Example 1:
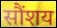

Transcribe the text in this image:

सौंशय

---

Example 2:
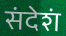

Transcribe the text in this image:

संदेशं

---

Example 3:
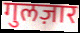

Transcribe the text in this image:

गुलज़ार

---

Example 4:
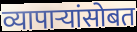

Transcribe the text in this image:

व्यापाऱ्यांसोबत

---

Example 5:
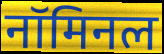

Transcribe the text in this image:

नॉमिनल